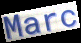
Marc